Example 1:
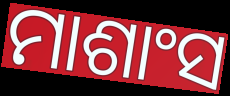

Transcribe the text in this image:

ମାଶାଂସ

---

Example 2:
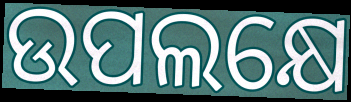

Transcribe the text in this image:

ଉପଲକ୍ଷେ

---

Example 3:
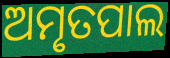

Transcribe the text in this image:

ଅମୃତପାଲ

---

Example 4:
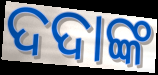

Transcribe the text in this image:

ଦଦାଙ୍କ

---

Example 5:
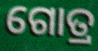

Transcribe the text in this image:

ଗୋତ୍ର